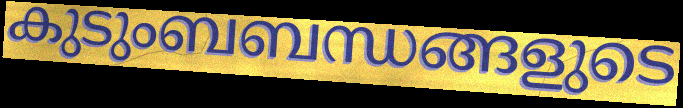
കുടുംബബന്ധങ്ങളുടെ